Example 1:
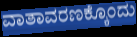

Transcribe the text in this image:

ವಾತಾವರಣಕ್ಕೊಂದು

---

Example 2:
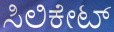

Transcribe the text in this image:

ಸಿಲಿಕೇಟ್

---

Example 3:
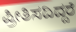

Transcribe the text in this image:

ಪ್ರೀತಿಸದಿದ್ದರೆ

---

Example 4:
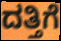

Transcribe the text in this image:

ದತ್ತಿಗೆ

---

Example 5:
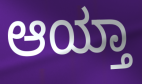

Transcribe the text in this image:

ಆಯ್ತಾ